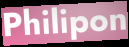
Philipon